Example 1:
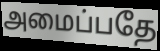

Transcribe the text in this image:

அமைப்பதே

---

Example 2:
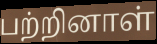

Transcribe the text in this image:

பற்றினாள்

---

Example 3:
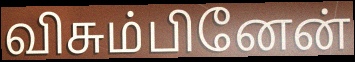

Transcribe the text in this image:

விசும்பினேன்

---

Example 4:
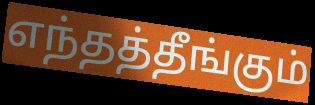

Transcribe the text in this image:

எந்தத்தீங்கும்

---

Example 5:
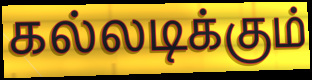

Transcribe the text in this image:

கல்லடிக்கும்